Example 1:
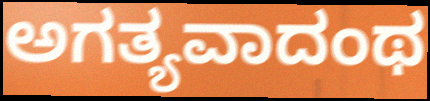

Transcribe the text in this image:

ಅಗತ್ಯವಾದಂಥ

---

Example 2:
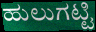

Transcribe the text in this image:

ಹುಲುಗಟ್ಟಿ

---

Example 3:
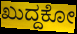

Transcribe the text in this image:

ಖುದ್ದಕೋ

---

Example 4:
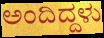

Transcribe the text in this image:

ಅಂದಿದ್ದಳು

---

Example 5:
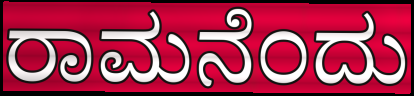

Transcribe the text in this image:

ರಾಮನೆಂದು